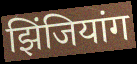
झिंजियांग